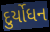
દુર્યોધન